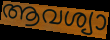
ആവശ്യാ